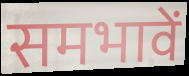
समभावें